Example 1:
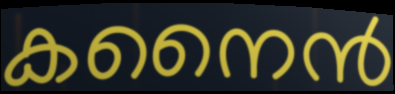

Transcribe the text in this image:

കനൈൻ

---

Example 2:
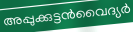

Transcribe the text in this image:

അപ്പുക്കുട്ടൻവൈദ്യർ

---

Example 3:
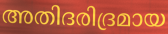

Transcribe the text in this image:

അതിദരിദ്രമായ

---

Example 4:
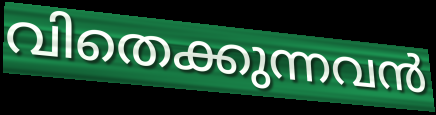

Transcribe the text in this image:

വിതെക്കുന്നവൻ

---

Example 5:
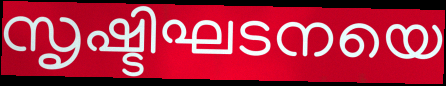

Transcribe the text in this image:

സൃഷ്ടിഘടനയെ